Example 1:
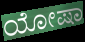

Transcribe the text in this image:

ಯೋಷಾ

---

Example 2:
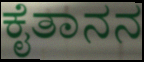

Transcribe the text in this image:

ಕೈತಾನನ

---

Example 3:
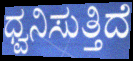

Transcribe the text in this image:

ಧ್ವನಿಸುತ್ತಿದೆ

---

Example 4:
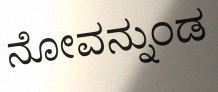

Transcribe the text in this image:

ನೋವನ್ನುಂಡ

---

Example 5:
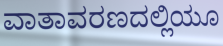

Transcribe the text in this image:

ವಾತಾವರಣದಲ್ಲಿಯೂ